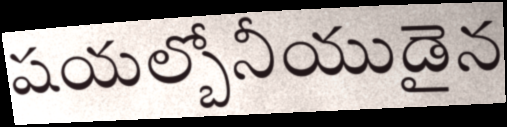
షయల్బోనీయుడైన